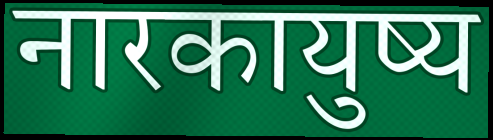
नारकायुष्य